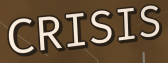
CRISIS